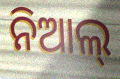
ନିଆଲ୍